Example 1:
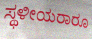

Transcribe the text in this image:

ಸ್ಥಳೀಯರಾರೂ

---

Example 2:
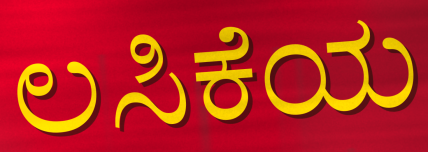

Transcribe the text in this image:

ಲಸಿಕೆಯ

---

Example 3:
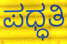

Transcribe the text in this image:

ಪಧ್ಧತಿ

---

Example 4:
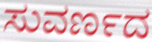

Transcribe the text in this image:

ಸುವರ್ಣದ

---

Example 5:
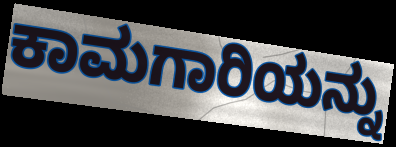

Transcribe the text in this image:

ಕಾಮಗಾರಿಯನ್ನು